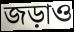
জড়াও